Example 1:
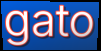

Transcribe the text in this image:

gato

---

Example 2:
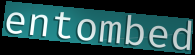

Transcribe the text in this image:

entombed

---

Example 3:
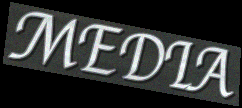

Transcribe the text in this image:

MEDIA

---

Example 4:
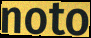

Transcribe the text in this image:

noto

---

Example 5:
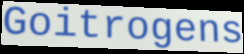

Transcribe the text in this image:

Goitrogens